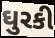
ઘુરકી